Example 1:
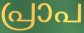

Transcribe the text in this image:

പ്രാപ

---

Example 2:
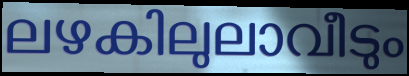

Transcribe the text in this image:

ലഴകിലുലാവീടും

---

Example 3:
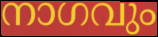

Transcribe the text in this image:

നാഗവും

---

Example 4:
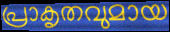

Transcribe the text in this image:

പ്രാകൃതവുമായ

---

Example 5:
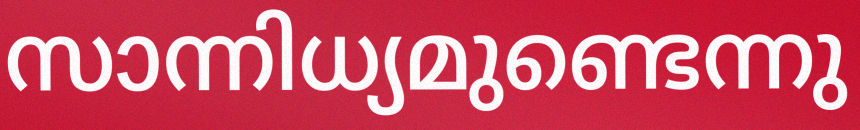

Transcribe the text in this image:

സാന്നിധ്യമുണ്ടെന്നു